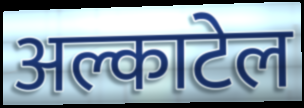
अल्काटेल